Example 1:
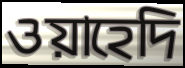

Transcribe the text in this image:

ওয়াহেদি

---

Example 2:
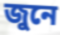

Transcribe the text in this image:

জুনে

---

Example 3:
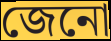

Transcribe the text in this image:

জেনো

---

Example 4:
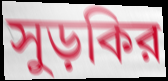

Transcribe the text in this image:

সুড়কির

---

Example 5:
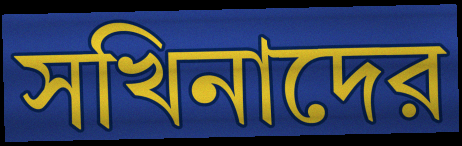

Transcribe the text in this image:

সখিনাদের